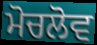
ਮੋਚਲੋਵ